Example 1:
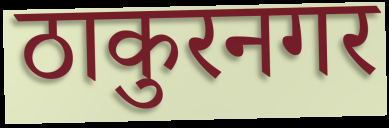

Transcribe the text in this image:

ठाकुरनगर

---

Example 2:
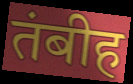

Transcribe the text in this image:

तंबीह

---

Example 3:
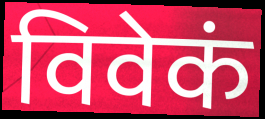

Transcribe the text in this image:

विवेकं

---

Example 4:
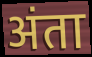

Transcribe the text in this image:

अंता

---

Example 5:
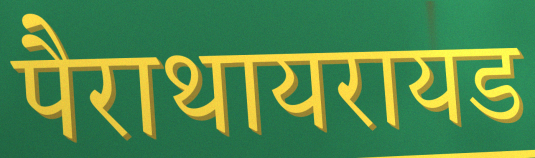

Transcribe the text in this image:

पैराथायरायड